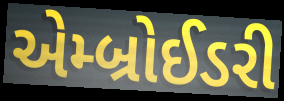
એમ્બ્રોઈડરી